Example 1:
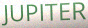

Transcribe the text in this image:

JUPITER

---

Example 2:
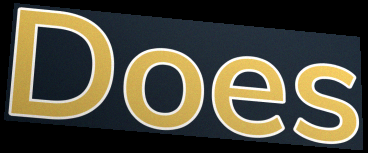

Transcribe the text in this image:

Does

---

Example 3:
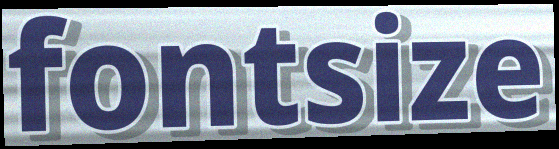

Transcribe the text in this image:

fontsize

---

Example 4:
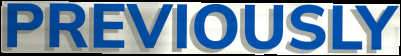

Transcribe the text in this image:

PREVIOUSLY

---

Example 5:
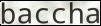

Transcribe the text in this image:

baccha